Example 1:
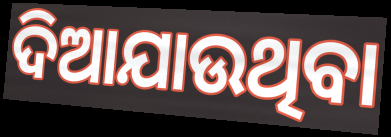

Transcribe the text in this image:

ଦିଆଯାଉଥିବା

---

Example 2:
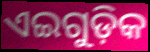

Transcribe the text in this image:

ଏଇଗୁଡ଼ିକ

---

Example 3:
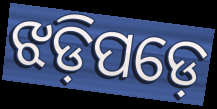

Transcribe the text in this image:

ଝଡ଼ିପଡ଼େ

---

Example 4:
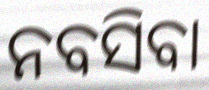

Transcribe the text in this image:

ନବସିବା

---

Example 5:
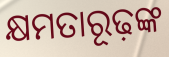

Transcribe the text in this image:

କ୍ଷମତାରୂଢ଼ଙ୍କ